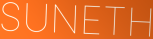
SUNETH